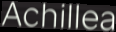
Achillea